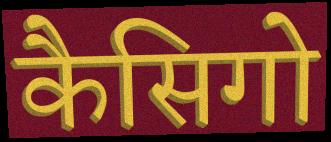
कैसिगो